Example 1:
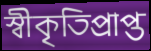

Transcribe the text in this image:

স্বীকৃতিপ্রাপ্ত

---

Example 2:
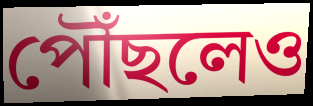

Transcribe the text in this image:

পৌঁছলেও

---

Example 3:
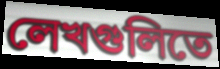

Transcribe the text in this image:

লেখগুলিতে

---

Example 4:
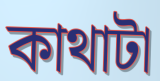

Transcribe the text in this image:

কাথাটা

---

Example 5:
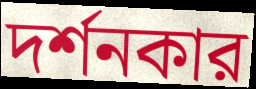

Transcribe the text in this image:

দর্শনকার